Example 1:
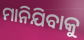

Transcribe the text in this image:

ମାନିଯିବାକୁ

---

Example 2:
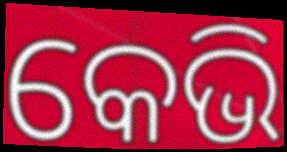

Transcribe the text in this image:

କେଭି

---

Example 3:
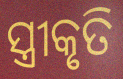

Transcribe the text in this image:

ସ୍ତ୍ରୀକୃତି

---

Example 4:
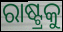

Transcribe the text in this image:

ରାଷ୍ଟ୍ରକୁ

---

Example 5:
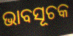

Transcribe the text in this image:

ଭାବସୂଚକ